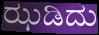
ಝಡಿದು